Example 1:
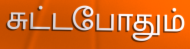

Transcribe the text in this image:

சுட்டபோதும்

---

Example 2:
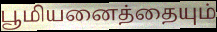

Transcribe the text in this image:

பூமியனைத்தையும்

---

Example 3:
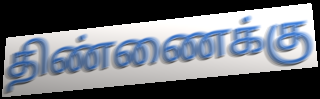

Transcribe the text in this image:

திண்ணைக்கு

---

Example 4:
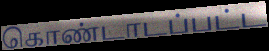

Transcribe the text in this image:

கொண்டாடப்பட்ட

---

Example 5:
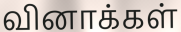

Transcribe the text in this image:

வினாக்கள்